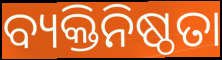
ବ୍ୟକ୍ତିନିଷ୍ଠତା